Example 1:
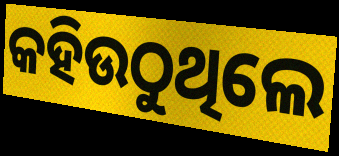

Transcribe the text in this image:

କହିଉଠୁଥିଲେ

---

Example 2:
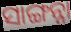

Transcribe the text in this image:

ସାଙ୍ଗନ୍ନା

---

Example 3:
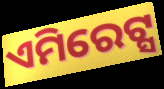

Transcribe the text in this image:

ଏମିରେଟ୍ସ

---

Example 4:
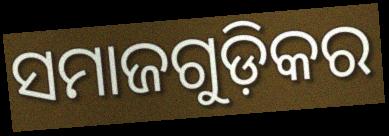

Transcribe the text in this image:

ସମାଜଗୁଡ଼ିକର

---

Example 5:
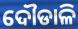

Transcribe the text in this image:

ଦୌଡାଳି